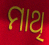
ମାଥି